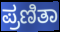
ಪ್ರಣಿತಾ